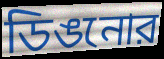
ডিঙনোর